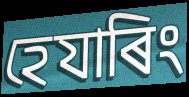
হেযাৰিং